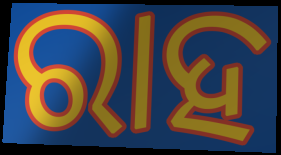
ରାହ